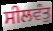
ਸੀਲਵੰਤੁ